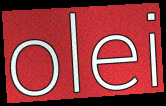
olei